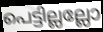
പെട്ടില്ലല്ലോ